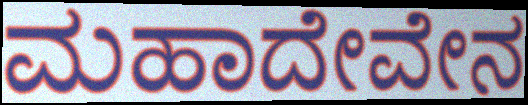
ಮಹಾದೇವೇನ